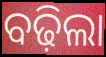
ବଢ଼ିଲା